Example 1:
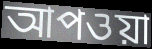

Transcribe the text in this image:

আপওয়া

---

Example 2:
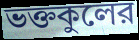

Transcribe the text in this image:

ভক্তকুলের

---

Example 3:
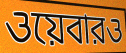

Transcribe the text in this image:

ওয়েবারও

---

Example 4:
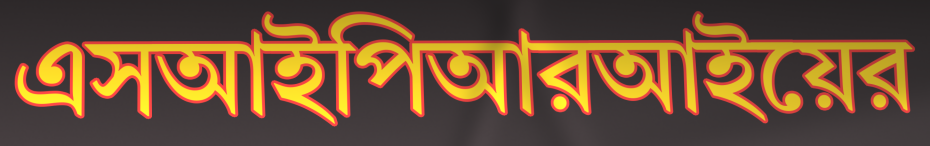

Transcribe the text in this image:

এসআইপিআরআইয়ের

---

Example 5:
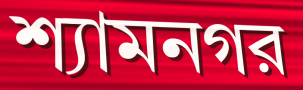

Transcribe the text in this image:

শ্যামনগর